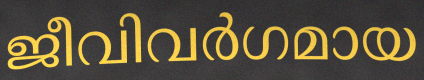
ജീവിവർഗമായ